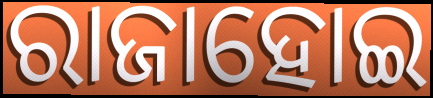
ରାଜାହୋଇ